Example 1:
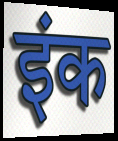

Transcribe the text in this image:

इंक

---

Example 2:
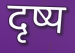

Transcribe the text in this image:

दृष्य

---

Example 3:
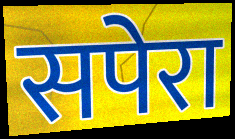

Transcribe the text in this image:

सपेरा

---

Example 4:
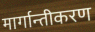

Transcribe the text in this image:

मार्गान्तीकरण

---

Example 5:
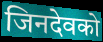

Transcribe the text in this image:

जिनदेवको